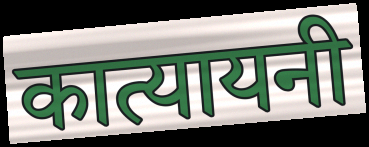
कात्यायनी